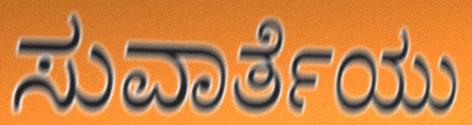
ಸುವಾರ್ತೆಯು